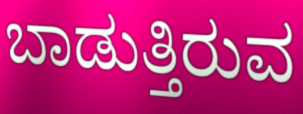
ಬಾಡುತ್ತಿರುವ